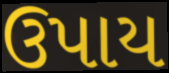
ઉપાય